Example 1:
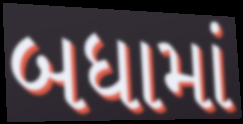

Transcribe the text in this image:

બધામાં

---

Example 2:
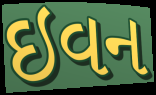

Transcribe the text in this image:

ઇવન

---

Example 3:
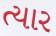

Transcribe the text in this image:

ત્યાર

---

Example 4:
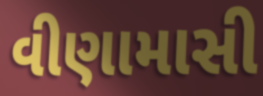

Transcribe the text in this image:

વીણામાસી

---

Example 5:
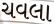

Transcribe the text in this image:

ચવલા